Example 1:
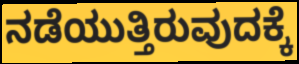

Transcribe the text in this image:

ನಡೆಯುತ್ತಿರುವುದಕ್ಕೆ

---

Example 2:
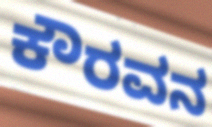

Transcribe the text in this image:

ಕೌರವನ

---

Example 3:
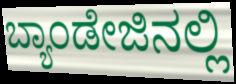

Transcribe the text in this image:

ಬ್ಯಾಂಡೇಜಿನಲ್ಲಿ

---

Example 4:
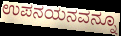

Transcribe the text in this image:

ಉಪನಯನವನ್ನೂ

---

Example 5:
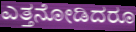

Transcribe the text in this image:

ಎತ್ತನೋಡಿದರೂ